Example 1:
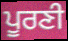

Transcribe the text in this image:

ਪੂਰਣੀ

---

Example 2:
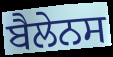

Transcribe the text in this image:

ਬੈਲੇਨਸ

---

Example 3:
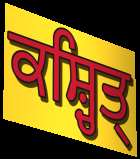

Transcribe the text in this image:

ਕਸ਼੍ਚਿਤ੍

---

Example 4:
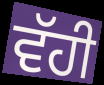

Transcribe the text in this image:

ਵੱਹੀ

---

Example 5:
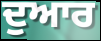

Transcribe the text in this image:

ਦੁਆਰ